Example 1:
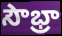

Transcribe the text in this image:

సౌభ్రా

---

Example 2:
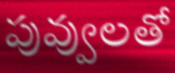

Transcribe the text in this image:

పువ్వులతో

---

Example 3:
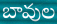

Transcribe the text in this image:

బావుల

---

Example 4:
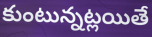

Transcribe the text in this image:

కుంటున్నట్లయితే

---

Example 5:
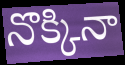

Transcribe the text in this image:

నొక్కినా